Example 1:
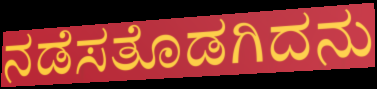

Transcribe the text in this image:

ನಡೆಸತೊಡಗಿದನು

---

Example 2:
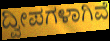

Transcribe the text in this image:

ದ್ವೀಪಗಳಾಗಿವೆ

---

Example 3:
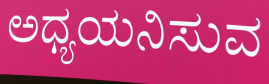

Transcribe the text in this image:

ಅಧ್ಯಯನಿಸುವ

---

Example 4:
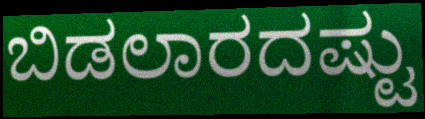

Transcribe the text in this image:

ಬಿಡಲಾರದಷ್ಟು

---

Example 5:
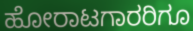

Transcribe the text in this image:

ಹೋರಾಟಗಾರರಿಗೂ